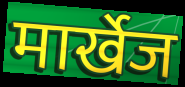
मार्खेज